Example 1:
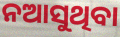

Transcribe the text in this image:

ନଆସୁଥିବା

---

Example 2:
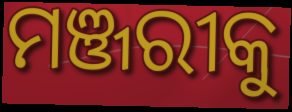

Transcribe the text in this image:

ମଞ୍ଜରୀକୁ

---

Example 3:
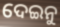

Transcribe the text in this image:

ଦେଇନୁ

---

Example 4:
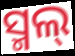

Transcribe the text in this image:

ସ୍ମଲ୍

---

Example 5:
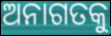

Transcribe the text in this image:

ଅନାଗତକୁ